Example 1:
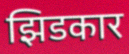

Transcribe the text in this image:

झिडकार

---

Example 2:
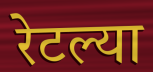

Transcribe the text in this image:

रेटल्या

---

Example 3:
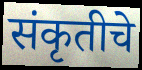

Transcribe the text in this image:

संकृतीचे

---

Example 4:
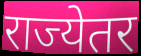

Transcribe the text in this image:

राज्येतर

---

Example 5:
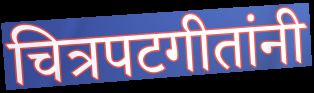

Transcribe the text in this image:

चित्रपटगीतांनी